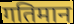
गतिमान